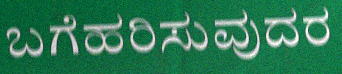
ಬಗೆಹರಿಸುವುದರ